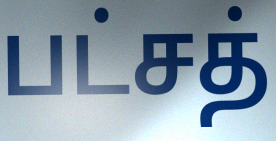
பட்சத்